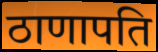
ठाणापति